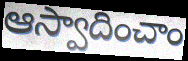
ఆస్వాదించాం